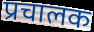
प्रचालक